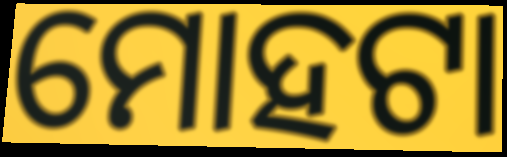
ମୋହଟା